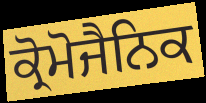
ਕ੍ਰੋਮੋਜੈਨਿਕ